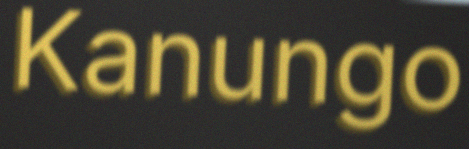
Kanungo